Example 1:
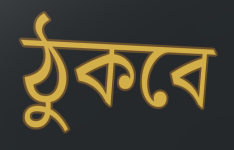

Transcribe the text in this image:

ঠুকবে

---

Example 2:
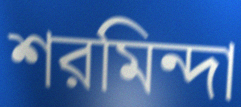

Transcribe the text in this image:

শরমিন্দা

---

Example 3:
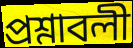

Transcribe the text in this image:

প্রশ্নাবলী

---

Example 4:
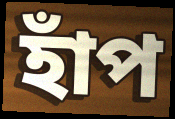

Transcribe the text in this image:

হাঁপ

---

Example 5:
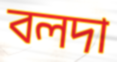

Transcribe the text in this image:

বলদা